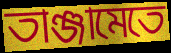
তাঞ্জামেতে